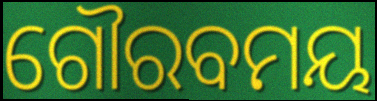
ଗୌରବମୟ